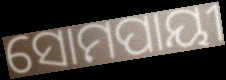
ସୋମପାୟୀ